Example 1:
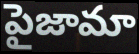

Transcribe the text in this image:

పైజామా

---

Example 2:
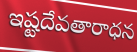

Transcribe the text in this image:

ఇష్టదేవతారాధన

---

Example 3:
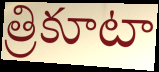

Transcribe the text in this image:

త్రికూటా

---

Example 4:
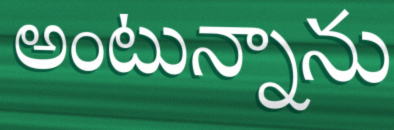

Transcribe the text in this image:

అంటున్నాను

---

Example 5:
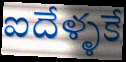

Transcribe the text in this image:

ఐదేళ్ళకే